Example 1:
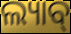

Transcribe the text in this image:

ଲ୍ୟାବ୍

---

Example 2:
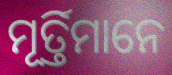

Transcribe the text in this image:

ମୂର୍ତ୍ତିମାନେ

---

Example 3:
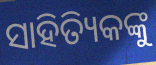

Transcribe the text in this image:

ସାହିତ୍ୟିକଙ୍କୁ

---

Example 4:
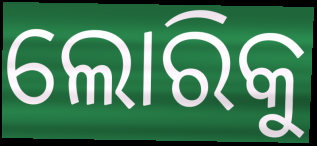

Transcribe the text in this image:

ଲୋରିକୁ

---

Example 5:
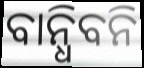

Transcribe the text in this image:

ବାନ୍ଧିବନି